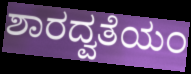
ಶಾರದ್ವತೆಯಂ